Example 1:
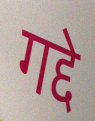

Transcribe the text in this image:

गद्दे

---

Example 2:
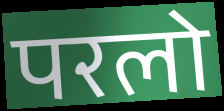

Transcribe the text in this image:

परलो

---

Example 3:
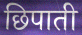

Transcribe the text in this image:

छिपाती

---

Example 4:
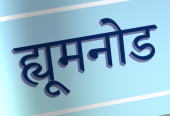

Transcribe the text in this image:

ह्यूमनोड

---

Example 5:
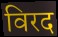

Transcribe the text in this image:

विरद